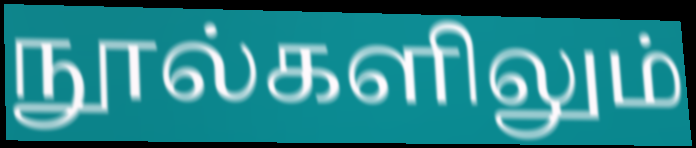
நூல்களிலும்